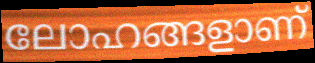
ലോഹങ്ങളാണ്